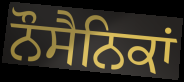
ਨੌਸੈਨਿਕਾਂ